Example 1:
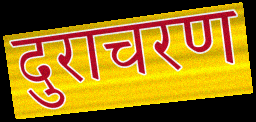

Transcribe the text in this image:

दुराचरण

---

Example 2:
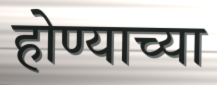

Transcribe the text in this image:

होण्‍याच्‍या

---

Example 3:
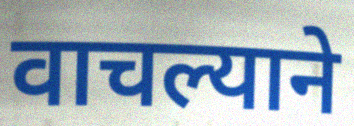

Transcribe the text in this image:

वाचल्याने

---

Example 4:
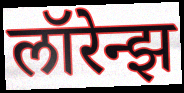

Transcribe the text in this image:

लॉरेन्झ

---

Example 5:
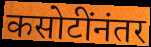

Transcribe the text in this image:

कसोटींनंतर